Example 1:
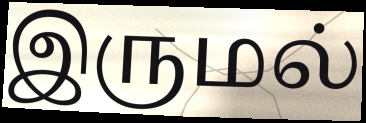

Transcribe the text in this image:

இருமல்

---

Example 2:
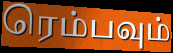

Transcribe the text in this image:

ரெம்பவும்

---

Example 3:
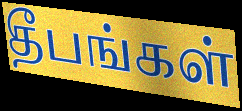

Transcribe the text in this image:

தீபங்கள்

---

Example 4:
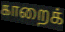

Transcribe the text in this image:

காறைக்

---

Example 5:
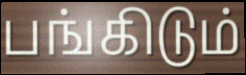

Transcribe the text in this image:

பங்கிடும்